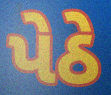
પેઠે